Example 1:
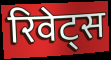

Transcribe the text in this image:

रिवेट्स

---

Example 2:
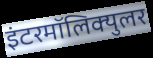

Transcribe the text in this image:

इंटरमॉलिक्युलर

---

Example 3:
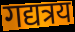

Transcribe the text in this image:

गद्यत्रय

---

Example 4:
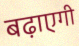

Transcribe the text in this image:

बढ़ाएगी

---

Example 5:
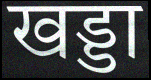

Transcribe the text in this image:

खड्डा